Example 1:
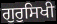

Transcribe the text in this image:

ਗੁਰੁਸਿਖੀ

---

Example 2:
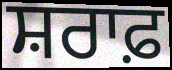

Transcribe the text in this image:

ਸ਼ਰਾਫ਼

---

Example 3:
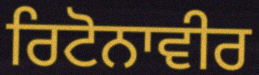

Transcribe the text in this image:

ਰਿਟੋਨਾਵੀਰ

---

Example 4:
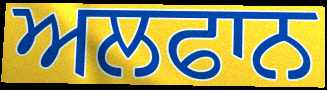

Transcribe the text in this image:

ਅਲਫਾਨ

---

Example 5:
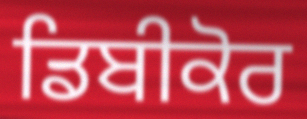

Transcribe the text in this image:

ਡਿਬੀਕੋਰ